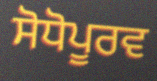
ਸੋਧੋਪੂਰਵ